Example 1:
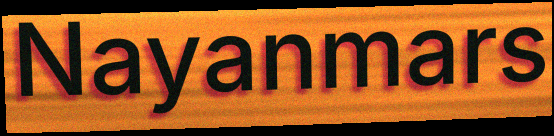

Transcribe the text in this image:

Nayanmars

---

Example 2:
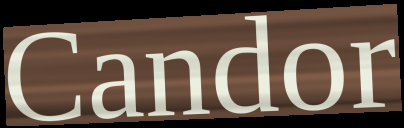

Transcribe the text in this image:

Candor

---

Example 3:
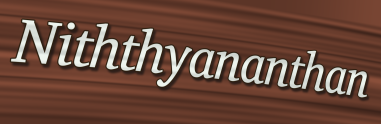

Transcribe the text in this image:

Niththyananthan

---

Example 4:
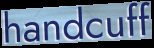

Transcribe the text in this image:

handcuff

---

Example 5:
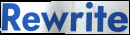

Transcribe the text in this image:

Rewrite